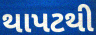
થાપટથી